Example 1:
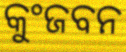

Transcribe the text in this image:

କୁଂଜବନ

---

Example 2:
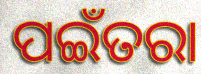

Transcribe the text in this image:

ପଇଁତରା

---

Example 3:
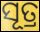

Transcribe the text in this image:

ସୂତ୍ର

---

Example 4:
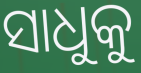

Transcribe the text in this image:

ସାଧୁକୁ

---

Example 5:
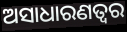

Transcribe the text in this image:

ଅସାଧାରଣତ୍ୱର